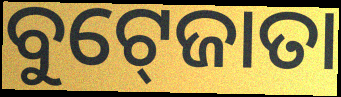
ବୁଟ୍‍ଜୋତା